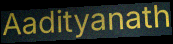
Aadityanath